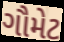
ગૌમેટ